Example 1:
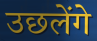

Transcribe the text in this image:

उछलेंगे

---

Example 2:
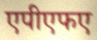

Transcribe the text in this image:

एपीएफए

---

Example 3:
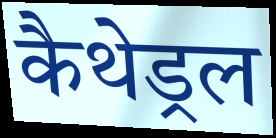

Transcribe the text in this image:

कैथेड्रल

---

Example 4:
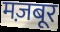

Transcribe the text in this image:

मज़बूर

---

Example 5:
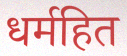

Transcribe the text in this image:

धर्महित